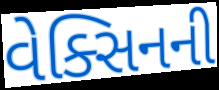
વેક્સિનની